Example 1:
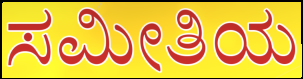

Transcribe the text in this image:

ಸಮೀತಿಯ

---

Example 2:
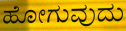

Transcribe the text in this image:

ಹೋಗುವುದು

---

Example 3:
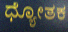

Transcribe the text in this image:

ಧ್ಯೋತಕ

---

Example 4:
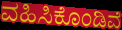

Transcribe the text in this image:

ವಹಿಸಿಕೊಂಡಿವೆ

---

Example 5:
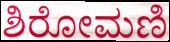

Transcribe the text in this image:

ಶಿರೋಮಣಿ